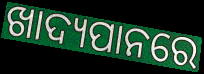
ଖାଦ୍ୟପାନରେ